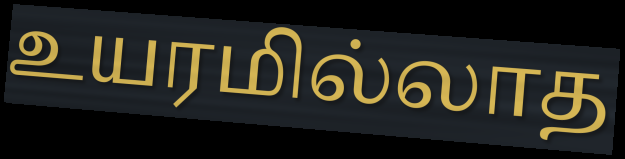
உயரமில்லாத